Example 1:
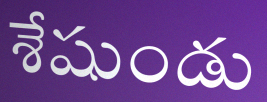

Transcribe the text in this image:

శేషుండు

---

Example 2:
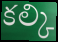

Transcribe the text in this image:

కల్కి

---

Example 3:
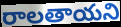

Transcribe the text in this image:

రాలతాయని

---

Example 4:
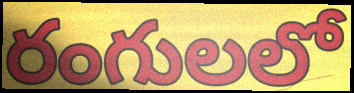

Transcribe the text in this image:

రంగులలో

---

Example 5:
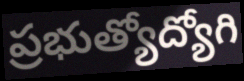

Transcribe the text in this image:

ప్రభుత్యోద్యోగి